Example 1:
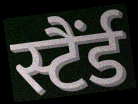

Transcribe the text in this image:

स्टैंर्ड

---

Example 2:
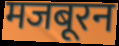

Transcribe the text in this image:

मजबूरन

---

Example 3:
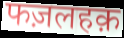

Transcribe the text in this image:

फज़लहक़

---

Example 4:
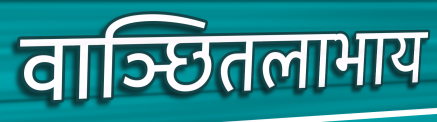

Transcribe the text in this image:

वाञ्छितलाभाय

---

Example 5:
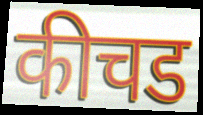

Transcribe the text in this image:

कीचड